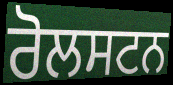
ਰੋਲਸਟਨ